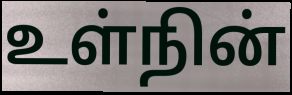
உள்நின்